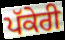
ਪੱਕੇਰੀ